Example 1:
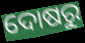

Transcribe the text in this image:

ଦୋଷରୁ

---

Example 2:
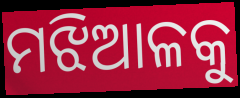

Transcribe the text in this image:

ମଝିଆଳକୁ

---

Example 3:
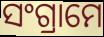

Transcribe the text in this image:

ସଂଗ୍ରାମେ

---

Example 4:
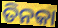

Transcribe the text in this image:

ତିନକା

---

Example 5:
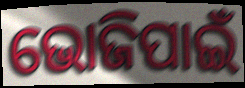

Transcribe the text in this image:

ଭୋଜିପାଇଁ